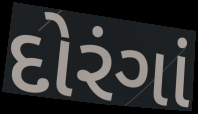
દોરંગાં